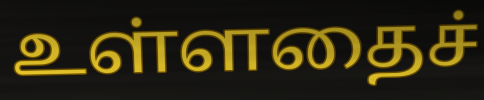
உள்ளதைச்